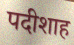
पदीशाह